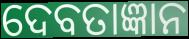
ଦେବତାଜ୍ଞାନ